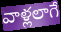
వాళ్లలాగే